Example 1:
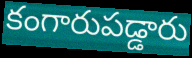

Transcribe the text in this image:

కంగారుపడ్డారు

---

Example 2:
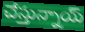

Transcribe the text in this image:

చేస్తున్నాయ్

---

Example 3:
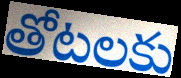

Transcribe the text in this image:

తోటలకు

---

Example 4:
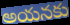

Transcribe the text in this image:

అయనకు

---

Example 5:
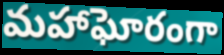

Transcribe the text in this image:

మహాఘోరంగా